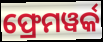
ଫ୍ରେମୱର୍କ